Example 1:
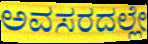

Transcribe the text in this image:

ಅವಸರದಲ್ಲೇ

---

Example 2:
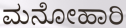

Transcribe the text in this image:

ಮನೋಹಾರಿ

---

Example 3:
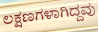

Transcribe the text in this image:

ಲಕ್ಷಣಗಳಾಗಿದ್ದವು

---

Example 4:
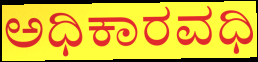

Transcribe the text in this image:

ಅಧಿಕಾರವಧಿ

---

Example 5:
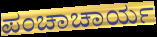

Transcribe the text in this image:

ಪಂಚಾಚಾರ್ಯ